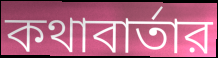
কথাবার্তার